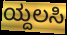
ಯ್ದಲಸಿ